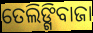
ତେଲିଙ୍ଗିବାଜା